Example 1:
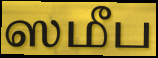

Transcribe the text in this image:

ஸமீப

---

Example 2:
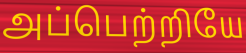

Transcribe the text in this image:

அப்பெற்றியே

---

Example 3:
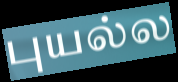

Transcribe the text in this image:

புயல்ல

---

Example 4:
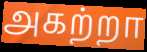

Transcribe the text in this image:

அகற்றா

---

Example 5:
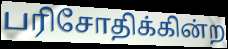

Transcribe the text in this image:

பரிசோதிக்கின்ற